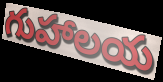
గుహాలయ